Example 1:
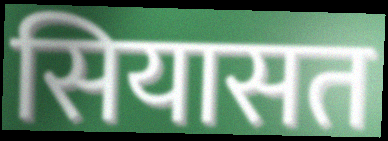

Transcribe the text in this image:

सियासत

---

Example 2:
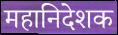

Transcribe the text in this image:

महानिदेशक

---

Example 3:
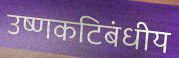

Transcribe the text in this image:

उष्णकटिबंधीय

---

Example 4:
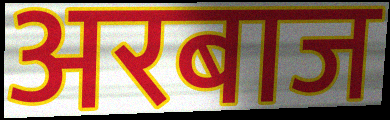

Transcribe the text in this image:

अरबाज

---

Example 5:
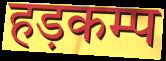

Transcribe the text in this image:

हड़कम्प